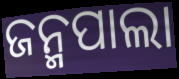
ଜନ୍ମପାଲା